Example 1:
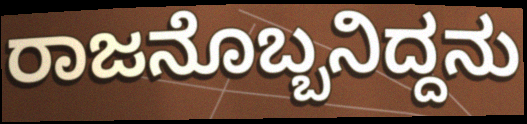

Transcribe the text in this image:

ರಾಜನೊಬ್ಬನಿದ್ದನು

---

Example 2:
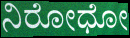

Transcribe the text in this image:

ನಿರೋಧೋ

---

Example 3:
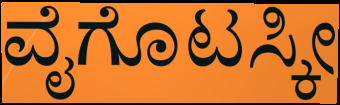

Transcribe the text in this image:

ವೈಗೊಟಸ್ಕೀ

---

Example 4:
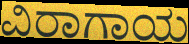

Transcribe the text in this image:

ವಿರಾಗಾಯ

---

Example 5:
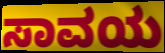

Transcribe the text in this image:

ಸಾವಯ